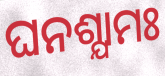
ଘନଶ୍ଯାମଃ